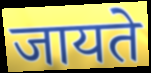
जायते